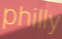
philly